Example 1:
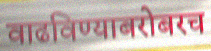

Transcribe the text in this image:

वाढविण्याबरोबरच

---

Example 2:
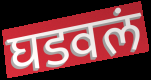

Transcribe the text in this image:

घडवलं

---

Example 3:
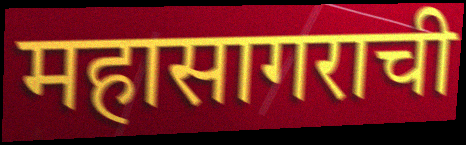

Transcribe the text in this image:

महासागराची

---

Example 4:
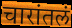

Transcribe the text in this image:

चारांतलं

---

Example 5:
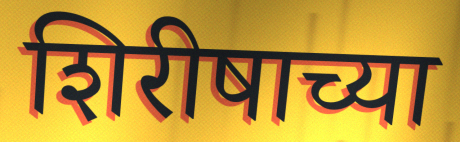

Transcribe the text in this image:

शिरीषाच्या